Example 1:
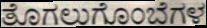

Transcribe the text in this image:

ತೊಗಲುಗೊಂಬೆಗಳ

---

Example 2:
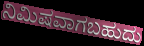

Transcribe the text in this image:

ನಿಮಿಷವಾಗಬಹುದು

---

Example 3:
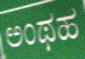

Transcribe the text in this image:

ಅಂಥಹ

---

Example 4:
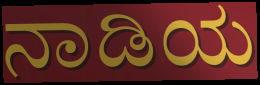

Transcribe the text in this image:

ನಾಡಿಯ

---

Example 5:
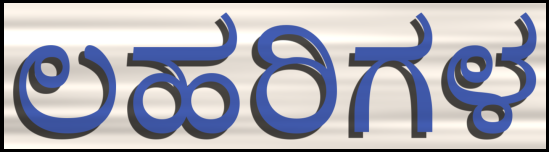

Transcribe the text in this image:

ಲಹರಿಗಳ